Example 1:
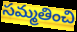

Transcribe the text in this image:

సమ్మతించి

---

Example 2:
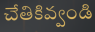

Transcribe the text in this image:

చేతికివ్వండి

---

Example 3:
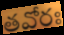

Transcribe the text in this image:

తవోరః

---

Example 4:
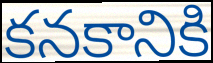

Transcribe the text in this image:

కనకానికి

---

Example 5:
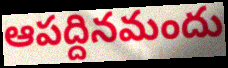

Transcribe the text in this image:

ఆపద్దినమందు